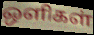
ஒளிகள்